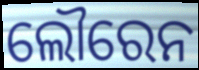
ଲୌରେନ